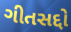
ગીતસદ્દો